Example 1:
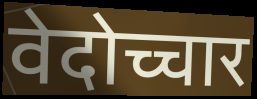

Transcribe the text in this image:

वेदोच्चार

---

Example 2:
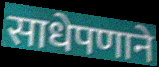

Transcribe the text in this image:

साधेपणाने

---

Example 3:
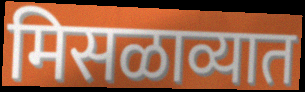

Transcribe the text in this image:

मिसळाव्यात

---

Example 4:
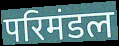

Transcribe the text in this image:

परिमंडल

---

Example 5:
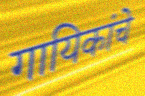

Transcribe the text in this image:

गायिकांचे